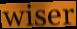
wiser